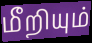
மீறியும்